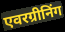
एवरग्रीनिंग